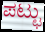
ಪಟ್ಟು